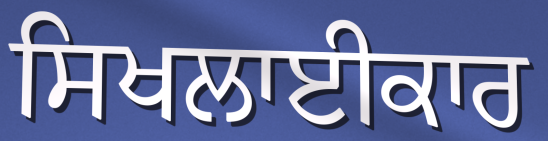
ਸਿਖਲਾਈਕਾਰ